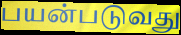
பயன்படுவது